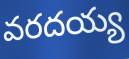
వరదయ్య